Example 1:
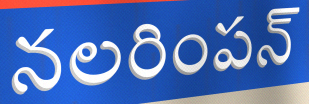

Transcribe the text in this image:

నలరింపన్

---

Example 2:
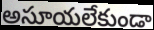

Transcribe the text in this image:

అసూయలేకుండా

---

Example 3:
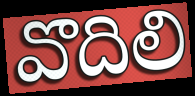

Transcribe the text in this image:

వొదిలి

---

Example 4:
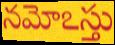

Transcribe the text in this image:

నమోఽస్తు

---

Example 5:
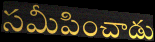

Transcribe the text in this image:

సమీపించాడు